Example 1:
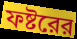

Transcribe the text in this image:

ফষ্টরের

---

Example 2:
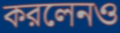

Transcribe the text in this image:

করলেনও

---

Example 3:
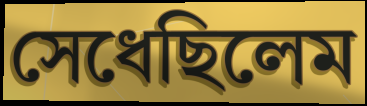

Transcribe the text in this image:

সেধেছিলেম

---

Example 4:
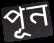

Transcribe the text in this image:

পূন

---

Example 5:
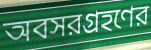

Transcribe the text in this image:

অবসরগ্রহণের